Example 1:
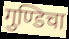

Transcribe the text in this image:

गुण्डिचा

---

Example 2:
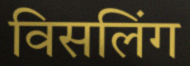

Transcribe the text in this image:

विसलिंग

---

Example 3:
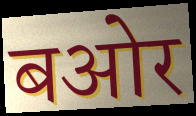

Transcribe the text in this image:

बओर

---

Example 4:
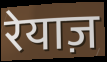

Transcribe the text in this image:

रेयाज़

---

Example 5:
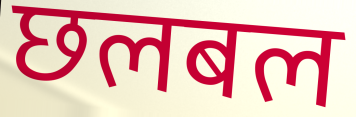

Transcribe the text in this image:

छलबल